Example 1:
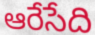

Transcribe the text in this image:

ఆరేసేది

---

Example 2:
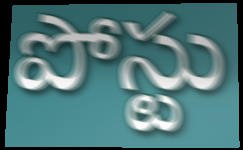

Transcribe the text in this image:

పోస్టు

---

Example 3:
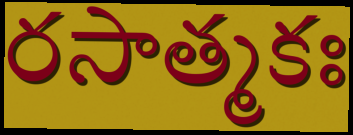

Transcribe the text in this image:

రసాత్మకః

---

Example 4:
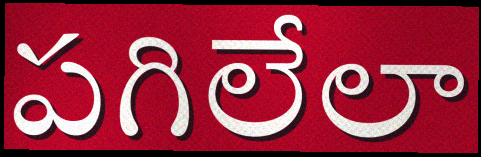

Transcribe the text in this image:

పగిలేలా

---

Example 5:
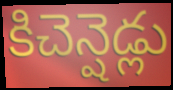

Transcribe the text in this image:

కిచెన్షెడ్లు